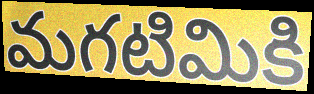
మగటిమికి